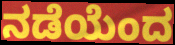
ನಡೆಯೆಂದ